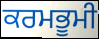
ਕਰਮਭੂਮੀ